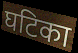
घटिका